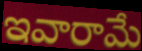
ఇవారామే